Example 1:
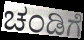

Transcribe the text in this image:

ಚಂಡಿಗೆ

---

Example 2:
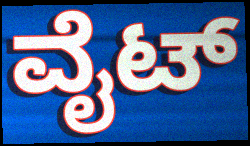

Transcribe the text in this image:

ವೈಟ್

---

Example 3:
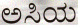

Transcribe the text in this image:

ಅಸಿಯ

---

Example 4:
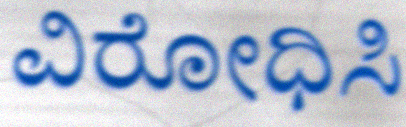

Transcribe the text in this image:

ವಿರೋಧಿಸಿ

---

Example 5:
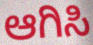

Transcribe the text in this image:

ಆಗಿಸಿ